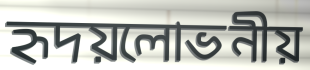
হৃদয়লোভনীয়